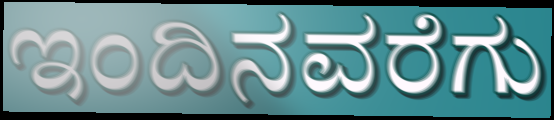
ಇಂದಿನವರೆಗು